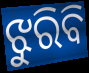
ଝୁରିବି